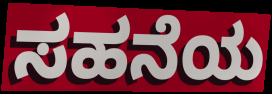
ಸಹನೆಯ